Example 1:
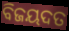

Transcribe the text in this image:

ବିଜୟଦତ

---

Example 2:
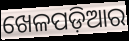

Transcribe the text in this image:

ଖେଳପଡ଼ିଆର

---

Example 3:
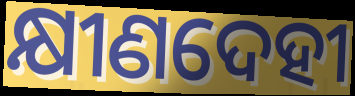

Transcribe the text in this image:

କ୍ଷୀଣଦେହୀ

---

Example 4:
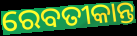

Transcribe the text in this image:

ରେବତୀକାନ୍ତ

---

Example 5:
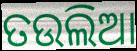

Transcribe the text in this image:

ତଉଲିଆ